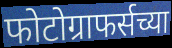
फोटोग्राफर्सच्या